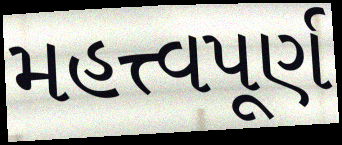
મહત્ત્વપૂર્ણ